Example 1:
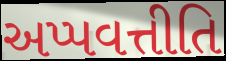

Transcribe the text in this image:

અપ્પવત્તીતિ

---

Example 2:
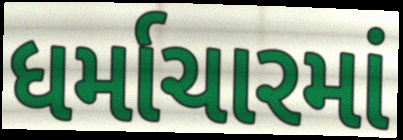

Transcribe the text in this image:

ધર્માચારમાં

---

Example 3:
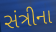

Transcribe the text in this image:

સંત્રીના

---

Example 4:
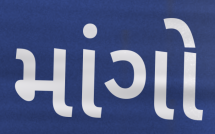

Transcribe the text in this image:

માંગો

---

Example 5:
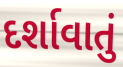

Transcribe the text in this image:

દર્શાવાતું